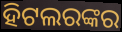
ହିଟଲରଙ୍କର